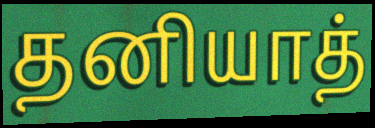
தனியாத்